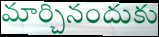
మార్చినందుకు